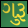
ગુરૂ